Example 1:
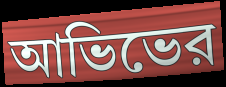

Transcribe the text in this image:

আভিভের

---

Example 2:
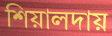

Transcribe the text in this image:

শিয়ালদায়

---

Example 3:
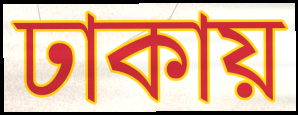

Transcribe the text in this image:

ঢাকায়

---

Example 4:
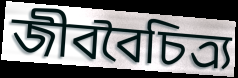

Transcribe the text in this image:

জীববৈচিত্র্য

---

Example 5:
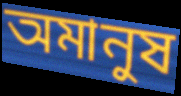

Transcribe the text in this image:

অমানুষ